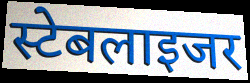
स्टेबलाइजर